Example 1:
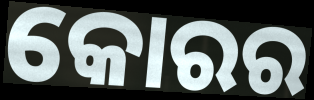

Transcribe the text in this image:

କୋରର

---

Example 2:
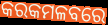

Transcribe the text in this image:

କରକମଳବରେ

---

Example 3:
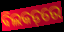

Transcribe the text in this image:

ବିଲକଡ଼ରେ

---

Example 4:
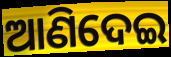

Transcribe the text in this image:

ଆଣିଦେଇ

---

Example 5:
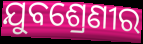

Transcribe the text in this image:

ଯୁବଶ୍ରେଣୀର